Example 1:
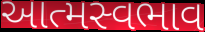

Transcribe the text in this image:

આત્મસ્વભાવ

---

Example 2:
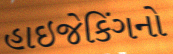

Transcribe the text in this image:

હાઇજેકિંગનો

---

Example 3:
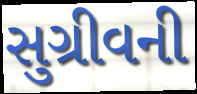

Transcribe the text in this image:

સુગ્રીવની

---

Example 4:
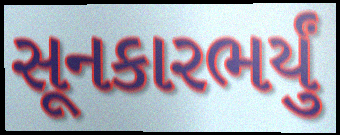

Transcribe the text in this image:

સૂનકારભર્યું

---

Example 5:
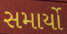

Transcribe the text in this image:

સમાર્યો